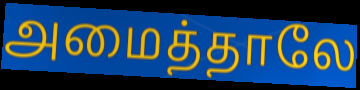
அமைத்தாலே